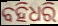
ବହିଧରି